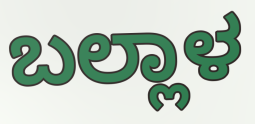
ಬಲ್ಲಾಳ